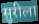
सुरीला